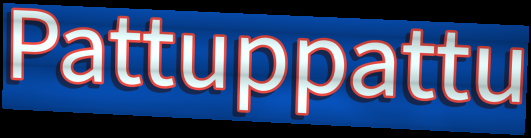
Pattuppattu